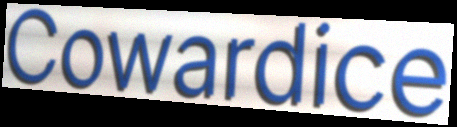
Cowardice